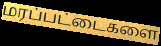
மரப்பட்டைகளை